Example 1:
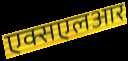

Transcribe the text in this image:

एक्सएलआर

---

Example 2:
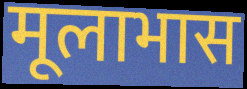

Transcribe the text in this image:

मूलाभास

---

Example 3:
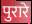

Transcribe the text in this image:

पुरारे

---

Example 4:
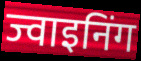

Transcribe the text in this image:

ज्वाइनिंग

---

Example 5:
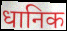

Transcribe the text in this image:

धानिक